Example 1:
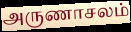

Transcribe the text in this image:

அருணாசலம்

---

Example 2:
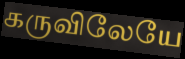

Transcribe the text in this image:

கருவிலேயே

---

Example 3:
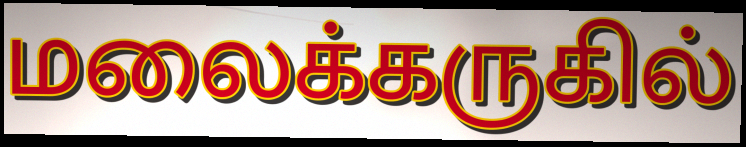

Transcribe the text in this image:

மலைக்கருகில்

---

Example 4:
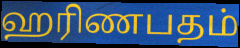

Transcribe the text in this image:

ஹரிணபதம்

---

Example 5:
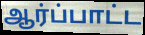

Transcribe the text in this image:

ஆர்ப்பாட்ட